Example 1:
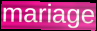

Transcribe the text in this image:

mariage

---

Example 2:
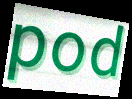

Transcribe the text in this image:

pod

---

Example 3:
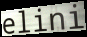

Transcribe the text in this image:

elini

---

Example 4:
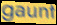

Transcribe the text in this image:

gaunt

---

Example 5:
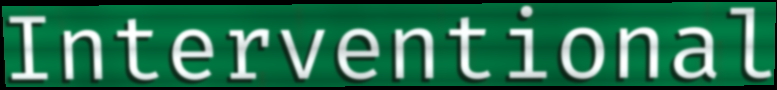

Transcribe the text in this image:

Interventional